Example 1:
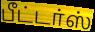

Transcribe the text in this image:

பீட்டர்ஸ்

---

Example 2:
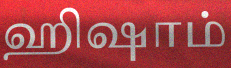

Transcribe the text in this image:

ஹிஷாம்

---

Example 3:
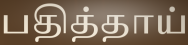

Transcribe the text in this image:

பதித்தாய்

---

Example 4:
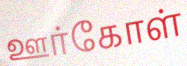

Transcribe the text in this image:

ஊர்கோள்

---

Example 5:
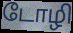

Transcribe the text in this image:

டோழி